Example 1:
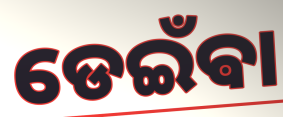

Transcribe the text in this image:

ଡେଇଁଵା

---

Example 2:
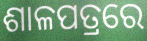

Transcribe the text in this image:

ଶାଳପତ୍ରରେ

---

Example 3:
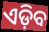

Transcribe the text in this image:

ଏଡ଼ିବ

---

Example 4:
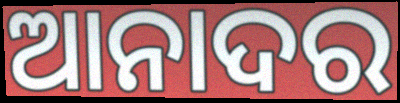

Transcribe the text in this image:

ଆନାଦର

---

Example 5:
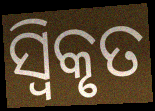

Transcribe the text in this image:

ସ୍ଵିକୃତ